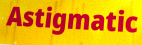
Astigmatic